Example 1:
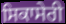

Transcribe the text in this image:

ਸਿਕਾਸੇਰੀ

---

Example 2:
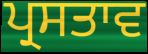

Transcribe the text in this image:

ਪ੍ਰਸਤਾਵ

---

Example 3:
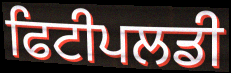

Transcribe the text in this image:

ਫਿਟੀਪਲਡੀ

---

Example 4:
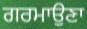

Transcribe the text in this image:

ਗਰਮਾਉਣਾ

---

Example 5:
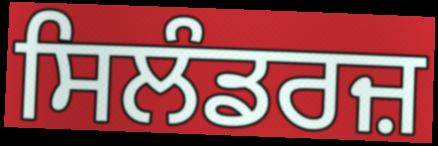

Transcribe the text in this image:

ਸਿਲੰਡਰਜ਼